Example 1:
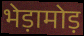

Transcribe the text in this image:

भेड़ामोड़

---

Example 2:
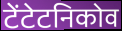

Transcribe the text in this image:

टेंटेटनिकोव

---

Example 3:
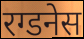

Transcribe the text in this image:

रग्डनेस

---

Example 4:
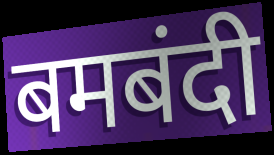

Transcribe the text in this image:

बमबंदी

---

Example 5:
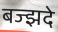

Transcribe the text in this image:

बज्झदे